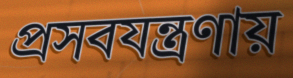
প্রসবযন্ত্রণায়